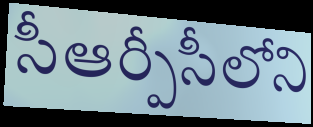
సీఆర్పీసీలోని